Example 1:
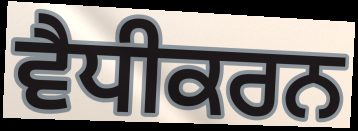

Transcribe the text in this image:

ਵੈਧੀਕਰਨ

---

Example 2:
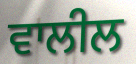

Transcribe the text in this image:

ਵਾਲੀਲ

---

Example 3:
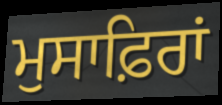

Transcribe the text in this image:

ਮੁਸਾਫ਼ਿਰਾਂ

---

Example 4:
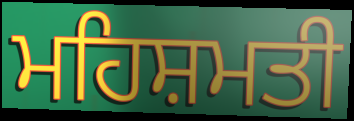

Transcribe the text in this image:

ਮਹਿਸ਼ਮਤੀ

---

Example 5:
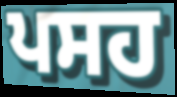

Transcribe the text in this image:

ਪਸਹ